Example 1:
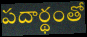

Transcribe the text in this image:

పదార్థంతో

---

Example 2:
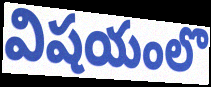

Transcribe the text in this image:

విషయంలొ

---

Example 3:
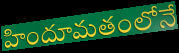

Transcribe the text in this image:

హిందూమతంలోనే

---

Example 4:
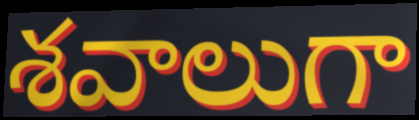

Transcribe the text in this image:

శవాలుగా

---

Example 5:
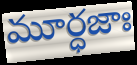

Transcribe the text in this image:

మూర్ధజాః